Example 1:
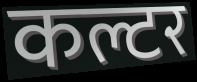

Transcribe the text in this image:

कल्टर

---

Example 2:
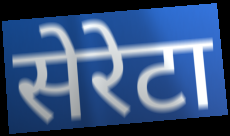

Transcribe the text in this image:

सेरेटा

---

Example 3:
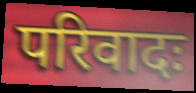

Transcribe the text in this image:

परिवादः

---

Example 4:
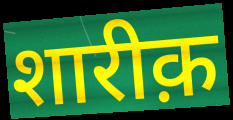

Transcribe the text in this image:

शारीक़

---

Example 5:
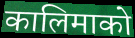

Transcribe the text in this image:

कालिमाको